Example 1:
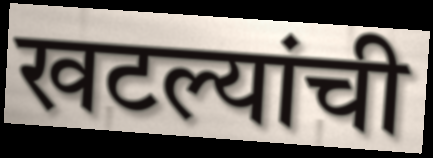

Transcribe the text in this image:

खटल्यांची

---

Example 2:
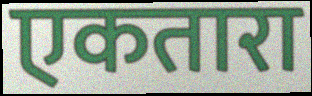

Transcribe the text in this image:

एकतारा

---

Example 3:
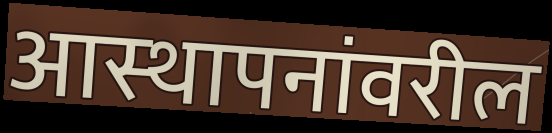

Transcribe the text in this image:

आस्थापनांवरील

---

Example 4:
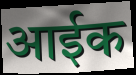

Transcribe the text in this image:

आईक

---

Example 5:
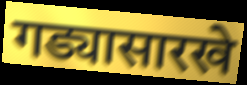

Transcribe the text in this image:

गड्यासारखे